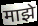
माझे